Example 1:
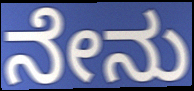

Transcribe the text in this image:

ನೇನು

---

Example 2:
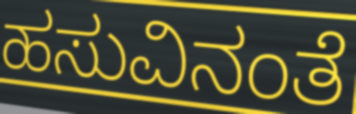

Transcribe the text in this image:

ಹಸುವಿನಂತೆ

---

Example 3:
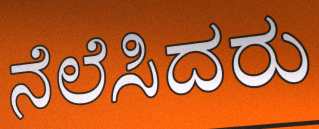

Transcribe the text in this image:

ನೆಲೆಸಿದರು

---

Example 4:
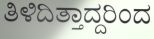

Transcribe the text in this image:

ತಿಳಿದಿತ್ತಾದ್ದರಿಂದ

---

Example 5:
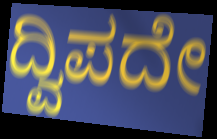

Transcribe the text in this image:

ದ್ವಿಪದೇ